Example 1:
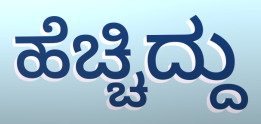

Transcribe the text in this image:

ಹೆಚ್ಚಿದ್ದು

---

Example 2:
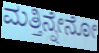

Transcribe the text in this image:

ಮತ್ತಿನ್ನೇನೋ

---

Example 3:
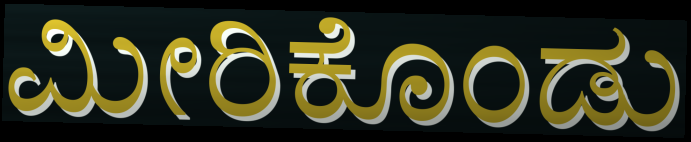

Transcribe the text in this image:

ಮೀರಿಕೊಂಡು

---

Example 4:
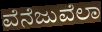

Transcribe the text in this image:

ವೆನೆಜುವೆಲಾ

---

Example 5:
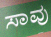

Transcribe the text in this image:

ಸಾವು